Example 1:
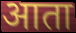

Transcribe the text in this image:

आता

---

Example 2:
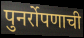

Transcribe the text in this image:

पुनर्रोपणाची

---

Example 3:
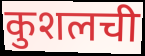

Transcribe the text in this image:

कुशलची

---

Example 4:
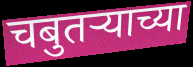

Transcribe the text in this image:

चबुतर्‍याच्या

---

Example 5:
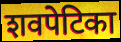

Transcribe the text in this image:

शवपेटिका